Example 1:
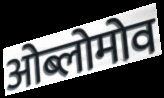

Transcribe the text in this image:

ओब्लोमोव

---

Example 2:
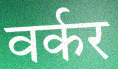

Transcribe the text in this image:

वर्कर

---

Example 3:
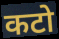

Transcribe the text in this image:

कटो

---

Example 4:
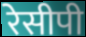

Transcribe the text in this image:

रेसीपी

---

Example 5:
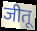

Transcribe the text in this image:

जीतू